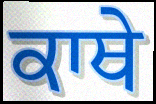
ਕਾਥੇ